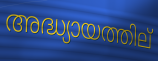
അദ്ധ്യായത്തില്